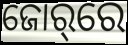
ଜୋର୍‌ରେ